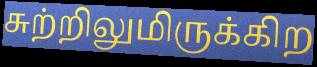
சுற்றிலுமிருக்கிற